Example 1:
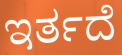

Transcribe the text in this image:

ಇರ್ತದೆ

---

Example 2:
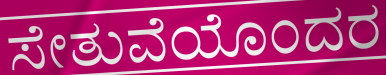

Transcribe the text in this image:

ಸೇತುವೆಯೊಂದರ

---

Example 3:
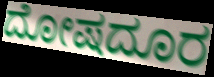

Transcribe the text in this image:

ದೋಷದೂರ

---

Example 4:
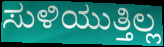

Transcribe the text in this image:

ಸುಳಿಯುತ್ತಿಲ್ಲ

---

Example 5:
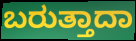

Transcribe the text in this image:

ಬರುತ್ತಾದಾ